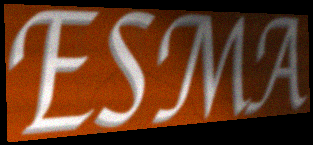
ESMA